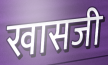
खासजी